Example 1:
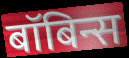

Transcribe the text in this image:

बॉबिन्स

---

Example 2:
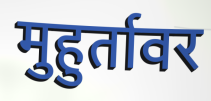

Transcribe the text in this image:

मुहुर्तावर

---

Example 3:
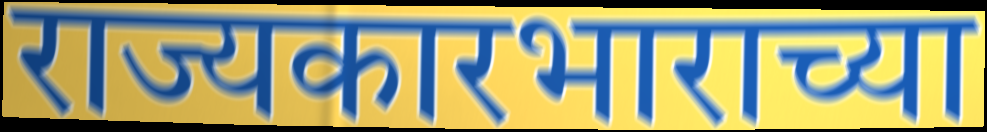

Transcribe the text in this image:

राज्यकारभाराच्या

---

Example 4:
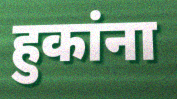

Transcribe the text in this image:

हुकांना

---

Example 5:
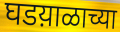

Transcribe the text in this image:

घडय़ाळाच्या